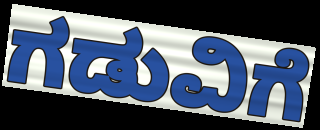
ಗಡುವಿಗೆ